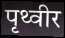
पृथ्वीर